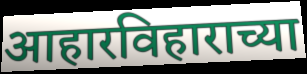
आहारविहाराच्या